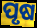
ପୃଷ